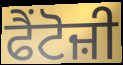
ਫੈਂਟੋਜ਼ੀ